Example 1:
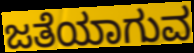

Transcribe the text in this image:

ಜತೆಯಾಗುವ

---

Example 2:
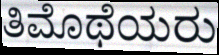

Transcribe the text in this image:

ತಿಮೊಥೆಯರು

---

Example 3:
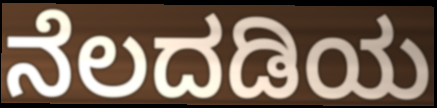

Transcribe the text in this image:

ನೆಲದಡಿಯ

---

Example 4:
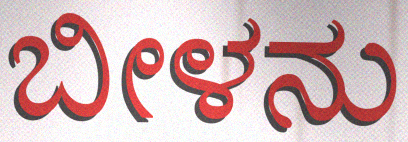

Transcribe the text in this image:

ಬೀಳನು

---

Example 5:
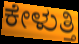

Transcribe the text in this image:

ಕೇಳುತ್ತಿ